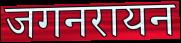
जगनरायन